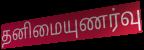
தனிமையுணர்வு